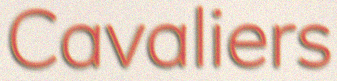
Cavaliers